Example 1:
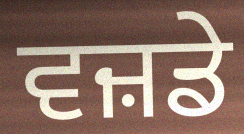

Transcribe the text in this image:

ਵਜ਼ਡੇ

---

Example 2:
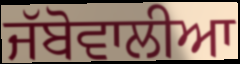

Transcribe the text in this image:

ਜੱਬੋਵਾਲੀਆ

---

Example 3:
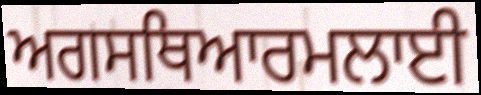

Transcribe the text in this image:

ਅਗਸਥਿਆਰਮਲਾਈ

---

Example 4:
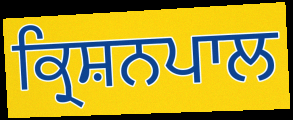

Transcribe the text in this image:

ਕ੍ਰਿਸ਼ਨਪਾਲ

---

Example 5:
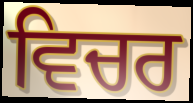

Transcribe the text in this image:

ਵਿਚਰ